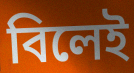
বিলেই